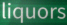
liquors